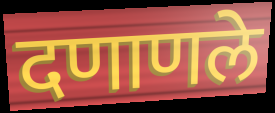
दणाणले